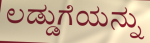
ಲಡ್ಡುಗೆಯನ್ನು